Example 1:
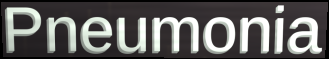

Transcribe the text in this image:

Pneumonia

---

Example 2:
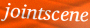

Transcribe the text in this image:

jointscene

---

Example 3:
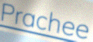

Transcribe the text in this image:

Prachee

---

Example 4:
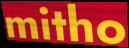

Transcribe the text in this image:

mitho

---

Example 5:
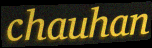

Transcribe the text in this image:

chauhan